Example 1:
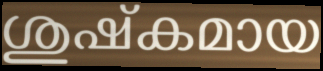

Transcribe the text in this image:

ശുഷ്‌കമായ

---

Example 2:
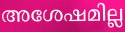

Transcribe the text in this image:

അശേഷമില്ല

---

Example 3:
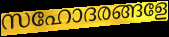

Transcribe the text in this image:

സഹോദരങ്ങളേ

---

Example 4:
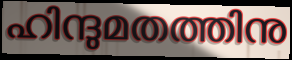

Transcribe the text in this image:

ഹിന്ദുമതത്തിനു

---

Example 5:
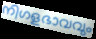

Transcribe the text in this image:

നിഗളഭാവവും